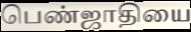
பெண்ஜாதியை